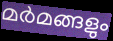
മർമങ്ങളും